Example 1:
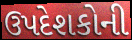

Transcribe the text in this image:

ઉપદેશકોની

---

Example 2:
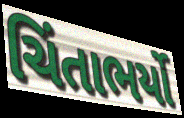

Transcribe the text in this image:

ચિંતાભર્યો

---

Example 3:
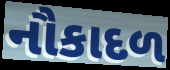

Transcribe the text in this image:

નૌકાદળ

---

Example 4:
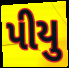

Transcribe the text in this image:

પીયુ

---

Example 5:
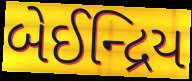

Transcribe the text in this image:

બેઈન્દ્રિય